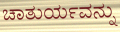
ಚಾತುರ್ಯವನ್ನು